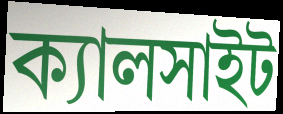
ক্যালসাইট